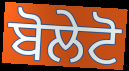
ਬੋਲੇਟੋ